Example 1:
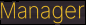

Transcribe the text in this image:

Manager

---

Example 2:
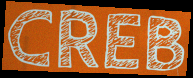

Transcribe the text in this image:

CREB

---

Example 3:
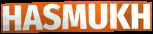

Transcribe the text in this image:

HASMUKH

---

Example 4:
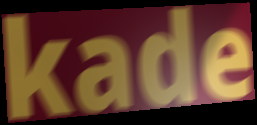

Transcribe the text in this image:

kade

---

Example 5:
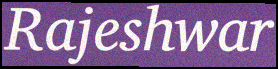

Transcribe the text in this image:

Rajeshwar